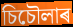
চিচৌলাৰ